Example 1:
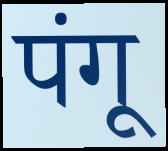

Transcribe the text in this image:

पंगू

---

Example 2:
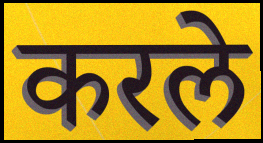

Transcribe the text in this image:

करले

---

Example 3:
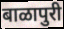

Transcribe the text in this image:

बाळापुरी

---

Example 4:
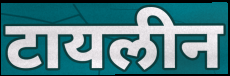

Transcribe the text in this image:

टायलीन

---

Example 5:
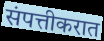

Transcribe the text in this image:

संपत्तीकरात